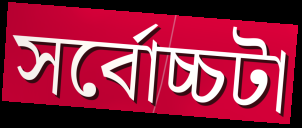
সর্বোচ্চটা